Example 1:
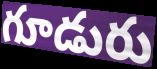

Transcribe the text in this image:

గూడురు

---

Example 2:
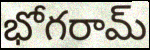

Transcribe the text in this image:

భోగరామ్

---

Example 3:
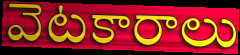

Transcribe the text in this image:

వెటకారాలు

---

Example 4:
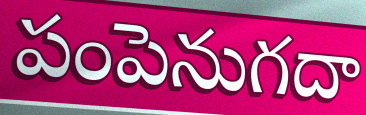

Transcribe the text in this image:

పంపెనుగదా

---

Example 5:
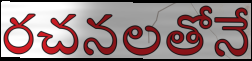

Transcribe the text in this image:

రచనలతోనే